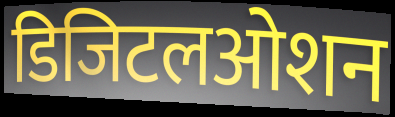
डिजिटलओशन